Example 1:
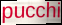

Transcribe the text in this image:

pucchi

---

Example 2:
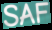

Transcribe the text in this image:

SAF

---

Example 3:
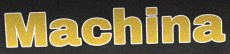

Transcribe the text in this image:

Machina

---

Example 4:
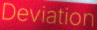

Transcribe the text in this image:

Deviation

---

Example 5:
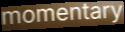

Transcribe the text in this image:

momentary